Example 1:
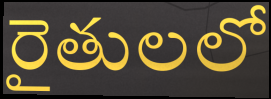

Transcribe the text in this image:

రైతులలో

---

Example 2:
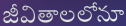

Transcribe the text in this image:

జీవితాలలోనూ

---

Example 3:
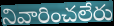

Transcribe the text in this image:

నివారించలేరు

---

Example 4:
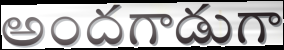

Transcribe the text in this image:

అందగాడుగా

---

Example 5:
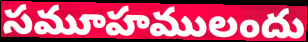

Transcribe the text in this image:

సమూహములందు